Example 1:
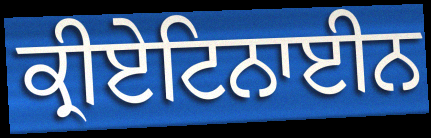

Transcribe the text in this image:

ਕ੍ਰੀਏਟਿਨਾਈਨ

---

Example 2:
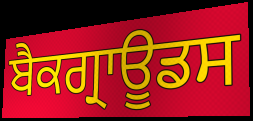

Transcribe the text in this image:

ਬੈਕਗ੍ਰਾਊਡਸ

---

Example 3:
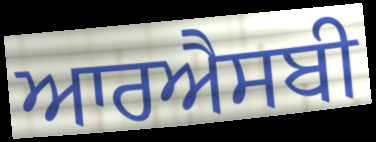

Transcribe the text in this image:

ਆਰਐਸਬੀ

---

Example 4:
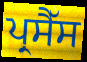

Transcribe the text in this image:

ਪ੍ਰਸੈੱਸ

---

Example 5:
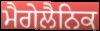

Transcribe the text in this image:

ਮੈਗੇਲੈਨਿਕ